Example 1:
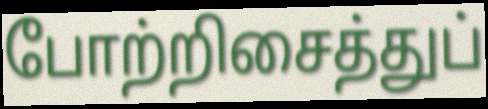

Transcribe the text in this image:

போற்றிசைத்துப்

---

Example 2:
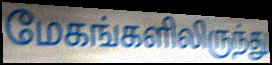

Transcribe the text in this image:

மேகங்களிலிருந்து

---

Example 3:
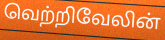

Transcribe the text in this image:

வெற்றிவேலின்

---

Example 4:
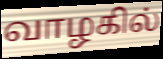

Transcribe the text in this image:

வாழகில்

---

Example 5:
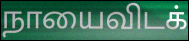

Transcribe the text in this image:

நாயைவிடக்